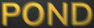
POND